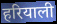
हरियाली